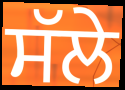
ਸੱਲੇ